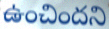
ఉంచిందని